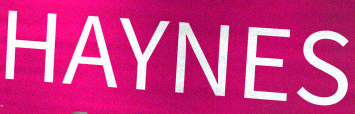
HAYNES